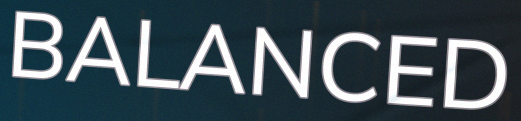
BALANCED